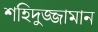
শহিদুজ্জামান